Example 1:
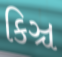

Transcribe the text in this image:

કિઞ્ચ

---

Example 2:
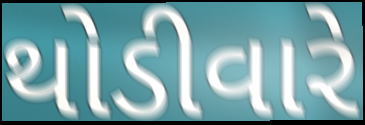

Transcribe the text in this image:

થોડીવારે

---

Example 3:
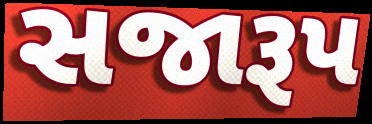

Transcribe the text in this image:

સજારૂપ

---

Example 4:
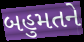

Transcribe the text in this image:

બહુમતને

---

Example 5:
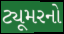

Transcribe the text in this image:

ટ્યૂમરનો